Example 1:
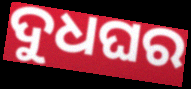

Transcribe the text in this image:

ଦୁଧଘର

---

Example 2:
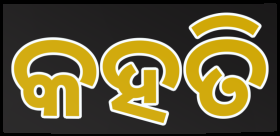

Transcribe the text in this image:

କହତି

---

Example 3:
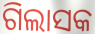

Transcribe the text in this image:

ଗିଲାସକ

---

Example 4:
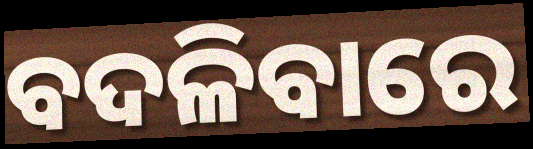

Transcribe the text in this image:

ବଦଳିବାରେ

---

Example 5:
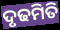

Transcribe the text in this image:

ଦୃଢମିତି